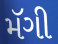
મૅગી